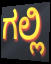
ಗಲ್ಲಿ